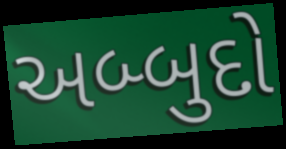
અબ્બુદો